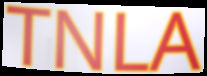
TNLA